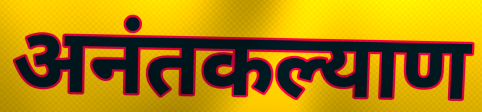
अनंतकल्याण